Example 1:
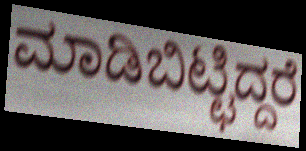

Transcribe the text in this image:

ಮಾಡಿಬಿಟ್ಟಿದ್ದರೆ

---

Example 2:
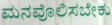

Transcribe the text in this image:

ಮನವೊಲಿಸಬೇಕು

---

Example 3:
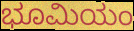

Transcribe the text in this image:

ಭೂಮಿಯಂ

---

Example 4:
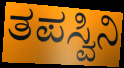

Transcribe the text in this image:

ತಪಸ್ವಿನಿ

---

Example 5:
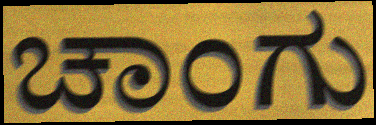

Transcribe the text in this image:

ಚಾಂಗು